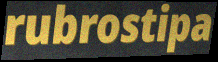
rubrostipa